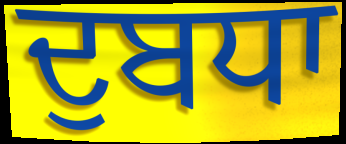
ਦੁਬਧਾ